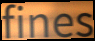
fines